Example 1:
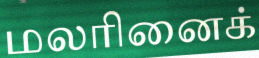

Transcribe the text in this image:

மலரினைக்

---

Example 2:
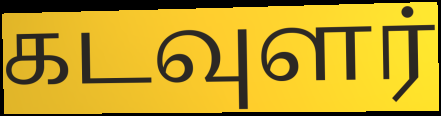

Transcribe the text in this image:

கடவுளர்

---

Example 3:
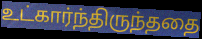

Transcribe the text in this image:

உட்கார்ந்திருந்ததை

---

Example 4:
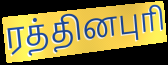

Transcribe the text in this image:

ரத்தினபுரி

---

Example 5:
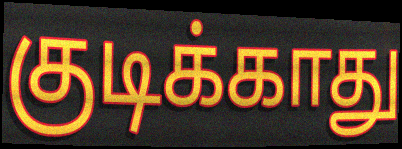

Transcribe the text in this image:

குடிக்காது